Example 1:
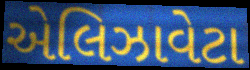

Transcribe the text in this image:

એલિઝાવેટા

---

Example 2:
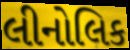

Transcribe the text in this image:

લીનોલિક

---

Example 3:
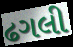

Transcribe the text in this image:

ઢગલી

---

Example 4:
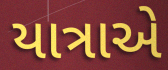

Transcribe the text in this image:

યાત્રાએ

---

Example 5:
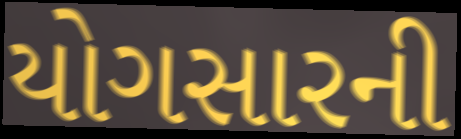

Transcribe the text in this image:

યોગસારની